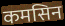
कमसिन